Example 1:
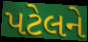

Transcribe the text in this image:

પટેલને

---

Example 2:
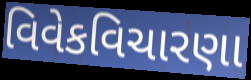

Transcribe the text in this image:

વિવેકવિચારણા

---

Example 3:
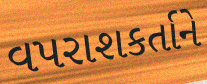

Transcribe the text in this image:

વપરાશકર્તાને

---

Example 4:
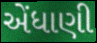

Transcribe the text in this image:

એંધાણી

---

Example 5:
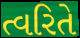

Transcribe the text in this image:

ત્વરિતે